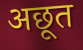
अछूत